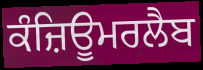
ਕੰਜ਼ਿਊਮਰਲੈਬ